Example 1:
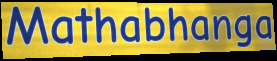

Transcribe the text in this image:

Mathabhanga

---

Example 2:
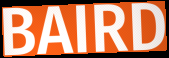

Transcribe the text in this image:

BAIRD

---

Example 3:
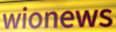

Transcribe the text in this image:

wionews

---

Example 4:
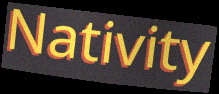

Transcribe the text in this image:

Nativity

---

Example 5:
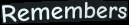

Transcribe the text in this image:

Remembers